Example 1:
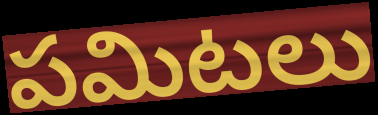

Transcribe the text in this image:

పమిటలు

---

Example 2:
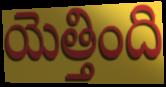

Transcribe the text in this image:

యెత్తింది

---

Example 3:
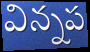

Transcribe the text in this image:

విన్నప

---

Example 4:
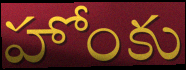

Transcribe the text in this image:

హోంకు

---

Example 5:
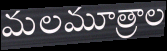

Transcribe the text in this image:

మలమూత్రాల